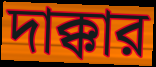
দাক্কার